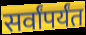
सर्वांपर्यंत